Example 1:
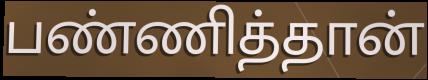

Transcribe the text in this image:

பண்ணித்தான்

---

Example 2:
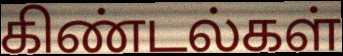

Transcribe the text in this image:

கிண்டல்கள்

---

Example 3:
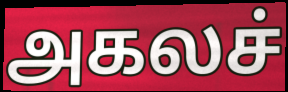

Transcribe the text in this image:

அகலச்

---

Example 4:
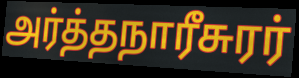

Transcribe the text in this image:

அர்த்தநாரீசுரர்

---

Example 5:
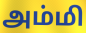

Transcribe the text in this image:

அம்மி